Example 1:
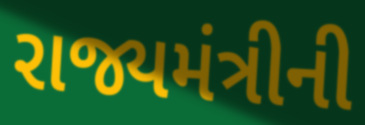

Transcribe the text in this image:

રાજ્યમંત્રીની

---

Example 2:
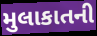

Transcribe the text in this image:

મુલાકાતની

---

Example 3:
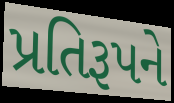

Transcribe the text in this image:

પ્રતિરૂપને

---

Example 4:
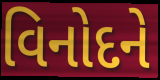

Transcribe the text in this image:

વિનોદને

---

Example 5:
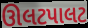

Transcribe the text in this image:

ઊલટપાલટ